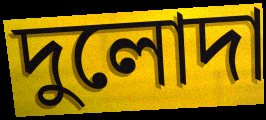
দুলোদা